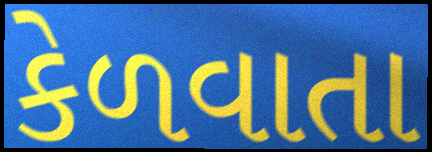
કેળવાતા